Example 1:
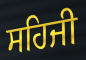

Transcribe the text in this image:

ਸਹਿਜੀ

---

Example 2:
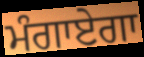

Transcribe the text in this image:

ਮੰਗਾਏਗਾ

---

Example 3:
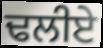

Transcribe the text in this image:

ਢਲੀਏ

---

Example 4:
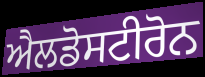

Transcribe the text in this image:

ਐਲਡੋਸਟੀਰੋਨ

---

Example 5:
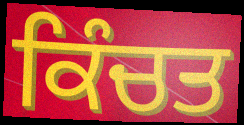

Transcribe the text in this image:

ਕਿੰਚਤ